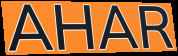
AHAR